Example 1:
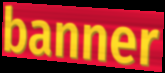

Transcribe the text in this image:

banner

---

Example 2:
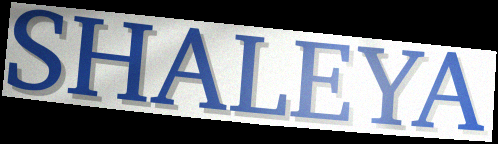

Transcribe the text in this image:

SHALEYA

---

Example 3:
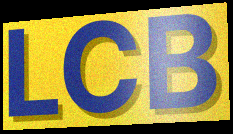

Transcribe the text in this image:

LCB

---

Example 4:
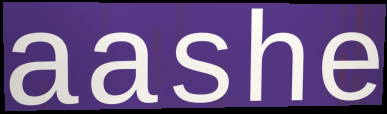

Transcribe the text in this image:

aashe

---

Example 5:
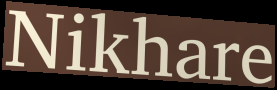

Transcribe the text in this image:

Nikhare